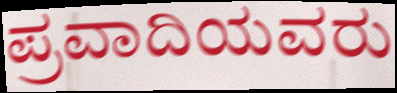
ಪ್ರವಾದಿಯವರು